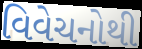
વિવેચનોથી